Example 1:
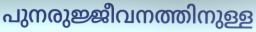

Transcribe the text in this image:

പുനരുജ്ജീവനത്തിനുള്ള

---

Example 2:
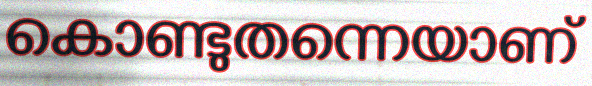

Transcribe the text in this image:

കൊണ്ടുതന്നെയാണ്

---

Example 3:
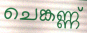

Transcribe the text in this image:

ചെങ്കണ്ണ്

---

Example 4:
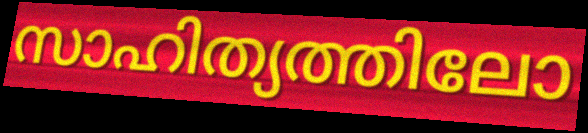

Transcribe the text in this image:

സാഹിത്യത്തിലോ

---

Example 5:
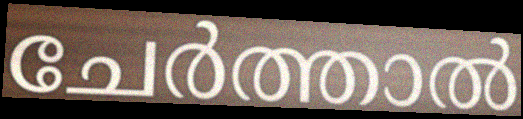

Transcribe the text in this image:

ചേർത്താൽ